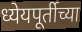
ध्येयपूर्तीच्या